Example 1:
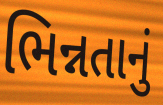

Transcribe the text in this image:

ભિન્નતાનું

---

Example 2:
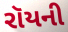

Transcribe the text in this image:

રૉયની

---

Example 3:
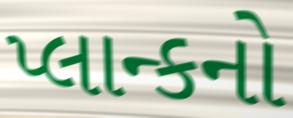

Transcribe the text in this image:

પ્લાન્કનો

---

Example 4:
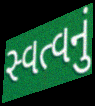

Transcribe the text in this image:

સ્વત્વનું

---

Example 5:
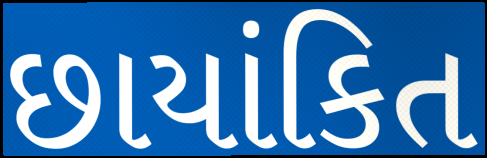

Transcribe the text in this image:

છાયાંકિત